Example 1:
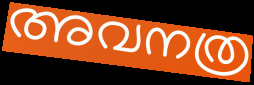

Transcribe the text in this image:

അവനത്ര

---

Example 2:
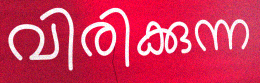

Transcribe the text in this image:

വിരിക്കുന്ന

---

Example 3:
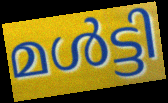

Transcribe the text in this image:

മൾട്ടി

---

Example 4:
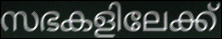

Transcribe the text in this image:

സഭകളിലേക്ക്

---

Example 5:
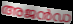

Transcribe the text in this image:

അജൻഡ